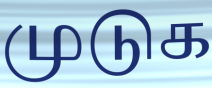
முடுக